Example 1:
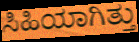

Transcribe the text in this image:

ಸಿಹಿಯಾಗಿತ್ತು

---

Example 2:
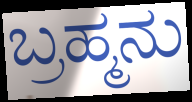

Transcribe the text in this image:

ಬ್ರಹ್ಮನು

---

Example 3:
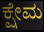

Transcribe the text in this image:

ಕ್ಷೇಮ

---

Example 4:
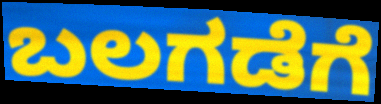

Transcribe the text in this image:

ಬಲಗಡೆಗೆ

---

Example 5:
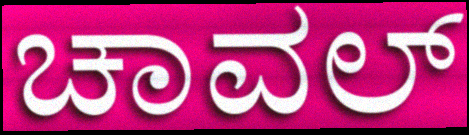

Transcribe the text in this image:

ಚಾವಲ್